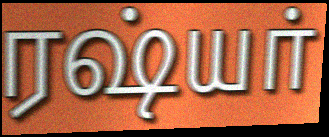
ரஷ்யர்